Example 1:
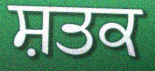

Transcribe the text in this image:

ਸ਼ਤਕ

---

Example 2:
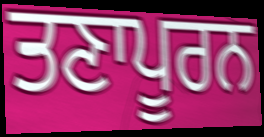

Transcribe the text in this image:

ਤਣਾਪੂਰਨ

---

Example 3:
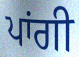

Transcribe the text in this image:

ਪਾਂਗੀ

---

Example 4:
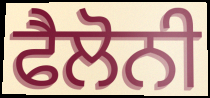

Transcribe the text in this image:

ਫੈਲੋਨੀ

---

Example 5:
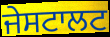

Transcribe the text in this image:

ਜੇਸਟਾਲਟ